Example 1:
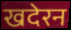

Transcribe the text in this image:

खदेरन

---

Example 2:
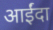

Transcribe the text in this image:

आईंदा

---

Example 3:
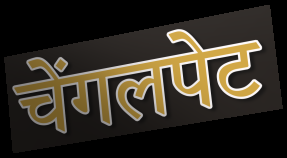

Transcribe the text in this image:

चेंगलपेट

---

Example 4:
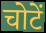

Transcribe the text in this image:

चोटें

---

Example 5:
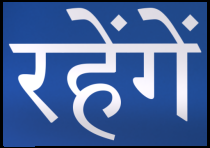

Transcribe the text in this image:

रहेंगें